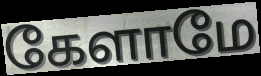
கேளாமே